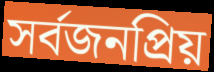
সর্বজনপ্রিয়